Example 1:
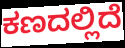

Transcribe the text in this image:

ಕಣದಲ್ಲಿದೆ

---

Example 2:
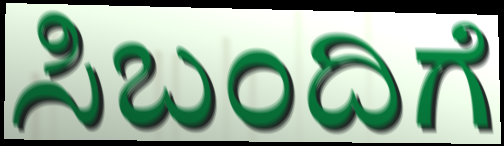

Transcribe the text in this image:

ಸಿಬಂದಿಗೆ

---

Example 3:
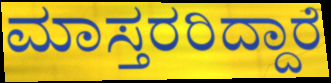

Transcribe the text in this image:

ಮಾಸ್ತರರಿದ್ದಾರೆ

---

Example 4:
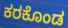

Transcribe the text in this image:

ಕರಕೊಂಡ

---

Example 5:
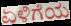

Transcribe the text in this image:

ಏಳಿಗೆಯ